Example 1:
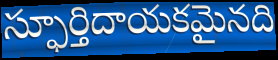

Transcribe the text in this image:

స్ఫూర్తిదాయకమైనది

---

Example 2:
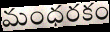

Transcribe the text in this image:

మంధరకం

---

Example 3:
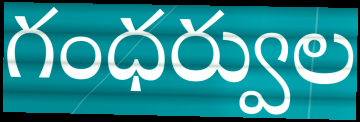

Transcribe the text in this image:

గంధర్వుల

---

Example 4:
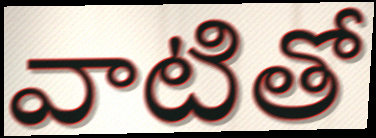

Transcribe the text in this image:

వాటితో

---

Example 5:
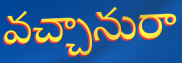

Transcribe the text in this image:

వచ్చానురా